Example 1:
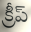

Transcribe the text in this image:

క్రీప్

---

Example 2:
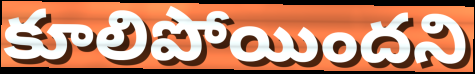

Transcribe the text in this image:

కూలిపోయిందని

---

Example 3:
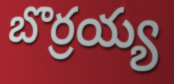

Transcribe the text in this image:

బొర్రయ్య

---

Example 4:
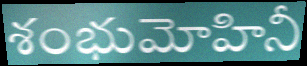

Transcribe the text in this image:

శంభుమోహినీ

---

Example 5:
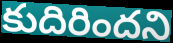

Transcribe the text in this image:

కుదిరిందని